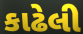
કાઢેલી